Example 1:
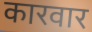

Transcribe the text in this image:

कारवार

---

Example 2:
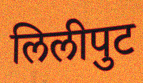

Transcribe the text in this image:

लिलीपुट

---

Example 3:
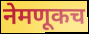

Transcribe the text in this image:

नेमणूकच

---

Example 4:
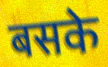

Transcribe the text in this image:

बसके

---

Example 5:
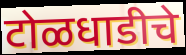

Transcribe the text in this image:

टोळधाडीचे